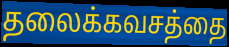
தலைக்கவசத்தை